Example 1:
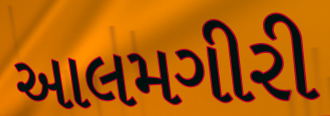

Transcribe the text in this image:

આલમગીરી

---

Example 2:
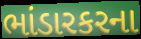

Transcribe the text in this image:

ભાંડારકરના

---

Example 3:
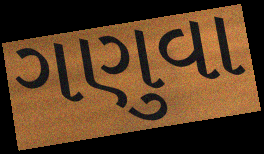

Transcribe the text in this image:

ગણુવા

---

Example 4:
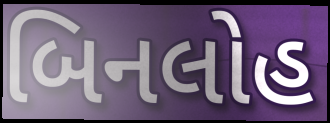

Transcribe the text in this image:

બિનલોહ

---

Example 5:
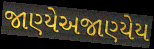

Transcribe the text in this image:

જાણ્યેઅજાણ્યેય